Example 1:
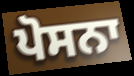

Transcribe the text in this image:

ਪੋਸਨਾ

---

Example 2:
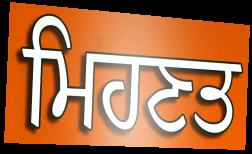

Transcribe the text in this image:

ਮਿਹਣਤ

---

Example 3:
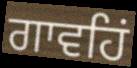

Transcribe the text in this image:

ਗਾਵਹਿਂ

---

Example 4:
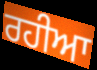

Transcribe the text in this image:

ਰਹੀਆ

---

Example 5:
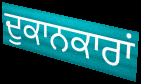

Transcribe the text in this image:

ਦੁਕਾਨਕਾਰਾਂ